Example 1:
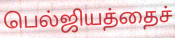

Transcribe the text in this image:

பெல்ஜியத்தைச்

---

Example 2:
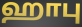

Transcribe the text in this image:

ஹாபு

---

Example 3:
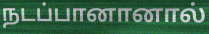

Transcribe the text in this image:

நடப்பானானால்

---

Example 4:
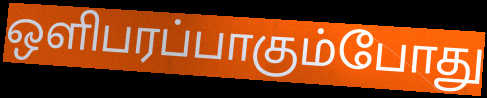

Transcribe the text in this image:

ஒளிபரப்பாகும்போது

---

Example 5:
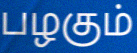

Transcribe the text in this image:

பழகும்